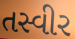
તસ્વીર